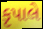
કૃપાલે